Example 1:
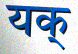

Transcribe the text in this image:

यक्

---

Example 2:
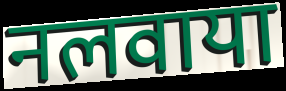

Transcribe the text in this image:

नलवाया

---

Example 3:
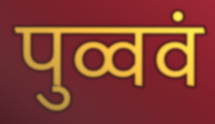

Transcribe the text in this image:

पुव्ववं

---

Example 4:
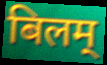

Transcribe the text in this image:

बिलम्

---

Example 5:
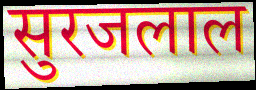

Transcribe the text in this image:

सुरजलाल